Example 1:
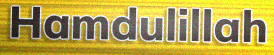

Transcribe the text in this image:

Hamdulillah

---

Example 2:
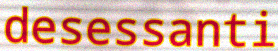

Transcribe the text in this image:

desessanti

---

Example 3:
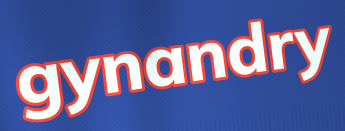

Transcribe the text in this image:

gynandry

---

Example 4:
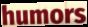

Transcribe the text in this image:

humors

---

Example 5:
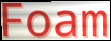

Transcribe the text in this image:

Foam